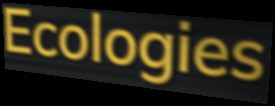
Ecologies